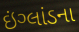
ઇંગ્લાંડના